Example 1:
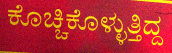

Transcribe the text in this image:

ಕೊಚ್ಚಿಕೊಳ್ಳುತ್ತಿದ್ದ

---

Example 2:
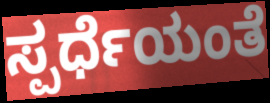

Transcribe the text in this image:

ಸ್ಪರ್ಧೆಯಂತೆ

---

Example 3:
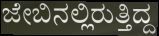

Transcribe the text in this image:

ಜೇಬಿನಲ್ಲಿರುತ್ತಿದ್ದ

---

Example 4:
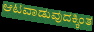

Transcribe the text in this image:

ಆಟವಾಡುವುದಕ್ಕಿಂತ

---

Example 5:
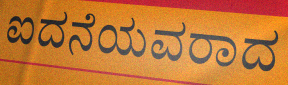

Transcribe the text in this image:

ಐದನೆಯವರಾದ